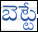
బెట్టే